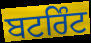
ਬਟਰਿੰਟ